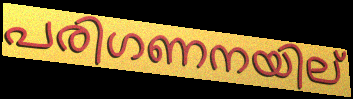
പരിഗണനയില്